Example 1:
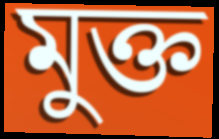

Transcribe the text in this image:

মুক্ত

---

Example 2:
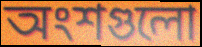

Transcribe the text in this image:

অংশগুলো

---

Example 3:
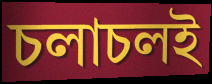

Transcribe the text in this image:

চলাচলই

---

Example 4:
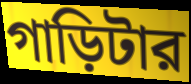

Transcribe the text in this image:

গাড়িটার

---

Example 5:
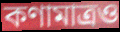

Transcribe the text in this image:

কণামাত্রও